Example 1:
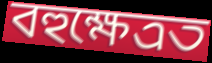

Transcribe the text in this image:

বহুক্ষেত্ৰত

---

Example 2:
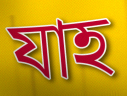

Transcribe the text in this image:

যাহ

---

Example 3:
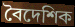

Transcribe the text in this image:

বৈদেশিক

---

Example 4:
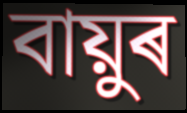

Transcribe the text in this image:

বায়ুৰ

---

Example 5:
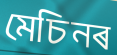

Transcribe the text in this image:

মেচিনৰ